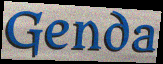
Genda